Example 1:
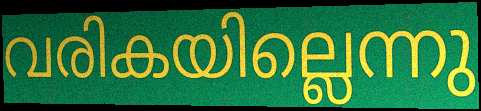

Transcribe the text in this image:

വരികയില്ലെന്നു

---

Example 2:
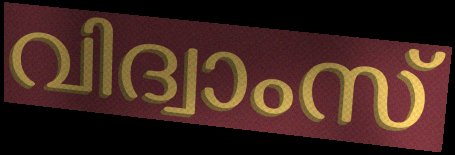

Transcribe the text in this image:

വിദ്വാംസ്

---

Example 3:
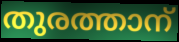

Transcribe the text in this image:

തുരത്താന്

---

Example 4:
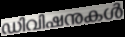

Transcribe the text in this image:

ഡിവിഷനുകൾ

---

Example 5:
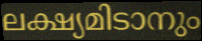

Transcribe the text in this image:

ലക്ഷ്യമിടാനും